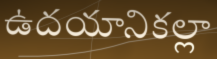
ఉదయానికల్లా